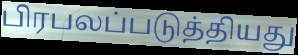
பிரபலப்படுத்தியது